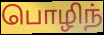
பொழிந்